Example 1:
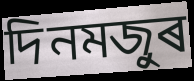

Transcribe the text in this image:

দিনমজুৰ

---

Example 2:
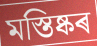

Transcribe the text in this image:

মস্তিষ্কৰ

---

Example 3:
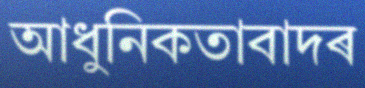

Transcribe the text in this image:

আধুনিকতাবাদৰ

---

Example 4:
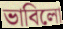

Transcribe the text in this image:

ভাবিলো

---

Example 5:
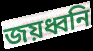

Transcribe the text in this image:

জয়ধ্বনি